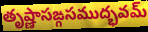
తృష్ణాసఙ్గసముద్భవమ్